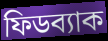
ফিডব্যাক